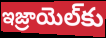
ఇజ్రాయెల్‌కు